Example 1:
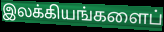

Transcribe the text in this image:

இலக்கியங்களைப்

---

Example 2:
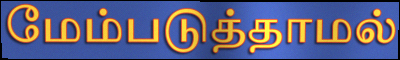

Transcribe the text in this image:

மேம்படுத்தாமல்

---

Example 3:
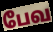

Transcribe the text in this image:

பேவ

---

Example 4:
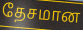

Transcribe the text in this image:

தேசமான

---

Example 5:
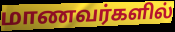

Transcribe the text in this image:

மாணவர்களில்